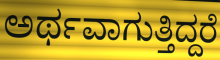
ಅರ್ಥವಾಗುತ್ತಿದ್ದರೆ